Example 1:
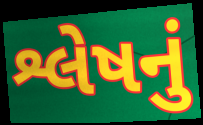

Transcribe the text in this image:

શ્લેષનું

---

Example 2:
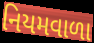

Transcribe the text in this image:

નિયમવાળા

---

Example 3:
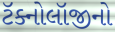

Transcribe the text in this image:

ટૅક્નોલૉજીનો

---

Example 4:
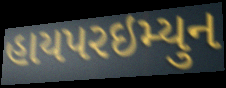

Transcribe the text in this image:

હાયપરઇમ્યુન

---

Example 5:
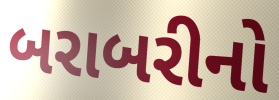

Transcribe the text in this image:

બરાબરીનો